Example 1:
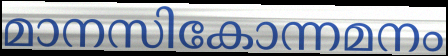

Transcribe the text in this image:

മാനസികോന്നമനം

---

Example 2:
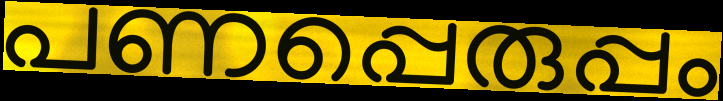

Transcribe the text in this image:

പണപ്പെരുപ്പം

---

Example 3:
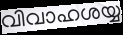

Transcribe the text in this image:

വിവാഹശയ്യ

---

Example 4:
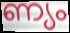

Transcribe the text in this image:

ണ്യം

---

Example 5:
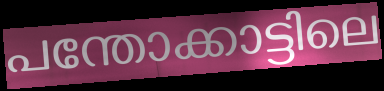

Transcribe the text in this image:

പന്തോക്കാട്ടിലെ